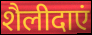
शैलीदाएं